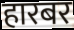
हारबर